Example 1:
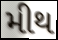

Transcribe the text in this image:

મીથ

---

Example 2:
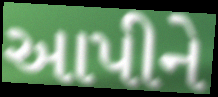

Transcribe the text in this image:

આપીને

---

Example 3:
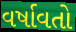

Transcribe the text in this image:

વર્ષાવતો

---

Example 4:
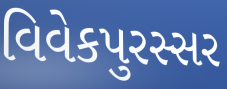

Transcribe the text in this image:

વિવેકપુરસ્સર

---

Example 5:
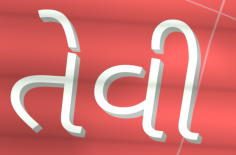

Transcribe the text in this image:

તેવી